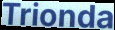
Trionda